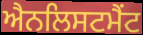
ਐਨਲਿਸਟਮੈਂਟ